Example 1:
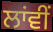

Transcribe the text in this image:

ਲਾਂਵੀਂ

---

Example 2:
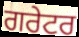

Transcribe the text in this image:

ਗਰੇਟਰ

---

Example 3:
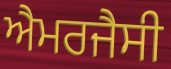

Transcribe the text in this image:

ਐਮਰਜੈਸੀ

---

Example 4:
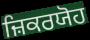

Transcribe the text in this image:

ਜ਼ਿਕਰਯੋਹ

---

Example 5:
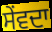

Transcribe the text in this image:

ਸੇਂਵਦਾ